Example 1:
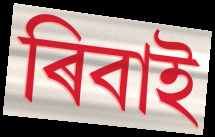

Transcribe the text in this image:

ৰিবাই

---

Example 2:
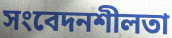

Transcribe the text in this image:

সংবেদনশীলতা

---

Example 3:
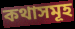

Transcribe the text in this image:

কথাসমূহ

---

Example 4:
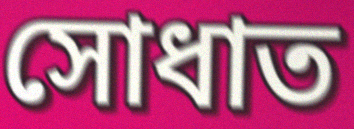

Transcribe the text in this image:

সোধাত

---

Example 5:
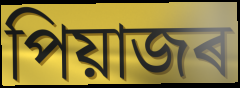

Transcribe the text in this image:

পিয়াজৰ